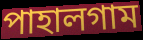
পাহালগাম